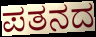
ಪತನದ